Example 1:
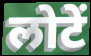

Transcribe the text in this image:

लोटें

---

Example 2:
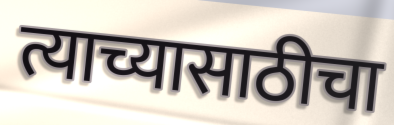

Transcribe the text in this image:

त्याच्यासाठीचा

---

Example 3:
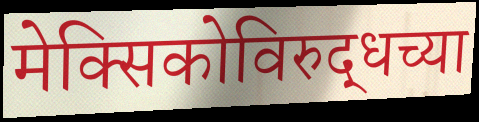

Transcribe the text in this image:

मेक्सिकोविरुद्धच्या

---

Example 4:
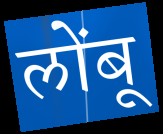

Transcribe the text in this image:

लोंबू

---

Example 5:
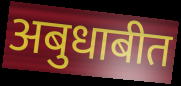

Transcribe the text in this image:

अबुधाबीत